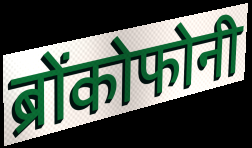
ब्रोंकोफोनी